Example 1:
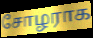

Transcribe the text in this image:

சோழராக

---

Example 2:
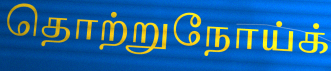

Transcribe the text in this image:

தொற்றுநோய்க்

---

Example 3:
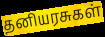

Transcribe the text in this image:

தனியரசுகள்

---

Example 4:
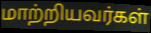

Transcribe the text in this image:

மாற்றியவர்கள்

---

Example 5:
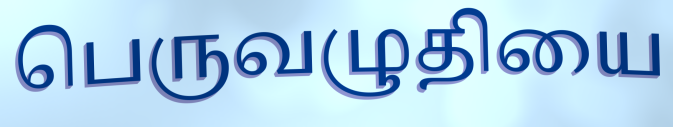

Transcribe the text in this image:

பெருவழுதியை